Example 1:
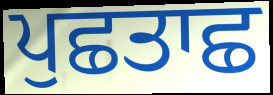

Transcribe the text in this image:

ਪੁਛਤਾਛ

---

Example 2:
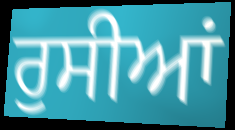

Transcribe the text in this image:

ਰੁਸੀਆਂ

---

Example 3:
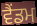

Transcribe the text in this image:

ਵੈਂਡਮ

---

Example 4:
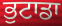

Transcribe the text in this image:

ਭੁਟਾਡਾ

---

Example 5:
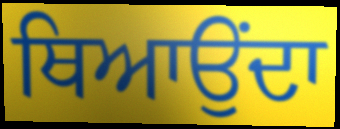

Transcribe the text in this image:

ਥਿਆਉਂਦਾ